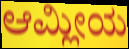
ಆಮ್ಲೀಯ